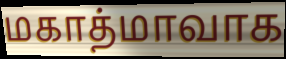
மகாத்மாவாக